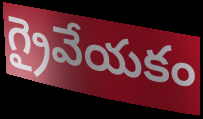
గ్రైవేయకం